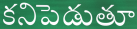
కనిపెడుతూ